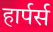
हार्पर्स